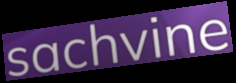
sachvine